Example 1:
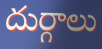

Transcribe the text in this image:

దుర్గాలు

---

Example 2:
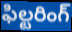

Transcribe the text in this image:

ఫిల్టరింగ్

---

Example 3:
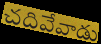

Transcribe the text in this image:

చదివేవాడు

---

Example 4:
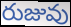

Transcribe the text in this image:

రుజువు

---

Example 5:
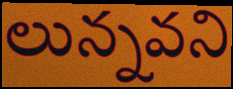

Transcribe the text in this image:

లున్నవని